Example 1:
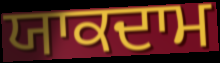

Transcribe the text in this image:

ਯਾਕਦਾਮ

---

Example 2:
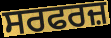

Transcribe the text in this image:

ਸਰਫਰਜ਼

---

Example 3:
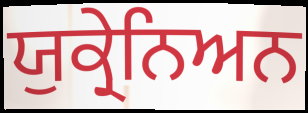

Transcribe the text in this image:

ਯੁਕ੍ਰੇਨਿਅਨ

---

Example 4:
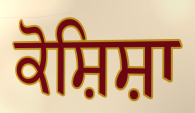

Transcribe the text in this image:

ਕੋਸ਼ਿਸ਼ਾ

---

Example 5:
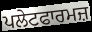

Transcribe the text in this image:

ਪਲੇਟਫਾਰਮਜ਼